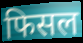
फिसल